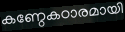
കണ്ഠേകഠാരമായി